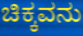
ಚಿಕ್ಕವನು